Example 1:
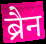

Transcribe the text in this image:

ब्रैन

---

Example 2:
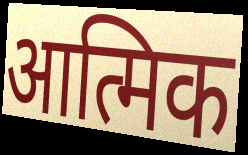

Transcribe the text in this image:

आत्मिक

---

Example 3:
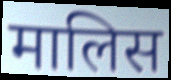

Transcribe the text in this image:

मालिस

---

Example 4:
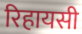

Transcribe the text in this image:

रिहायसी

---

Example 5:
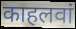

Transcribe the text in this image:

काहलवां